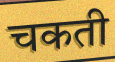
चकती